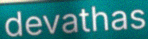
devathas